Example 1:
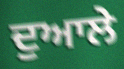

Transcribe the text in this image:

ਦੁਆਲੇ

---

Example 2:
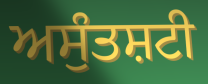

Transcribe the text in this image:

ਅਸੁੰਤਸ਼ਟੀ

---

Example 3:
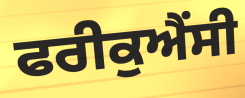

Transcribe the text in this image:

ਫਰੀਕੁਐਂਸੀ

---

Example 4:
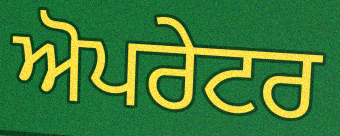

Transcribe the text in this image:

ਅੋਪਰੇਟਰ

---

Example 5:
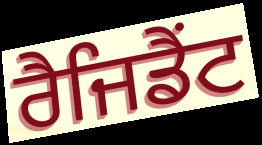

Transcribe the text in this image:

ਰੈਜਿਡੈਂਟ